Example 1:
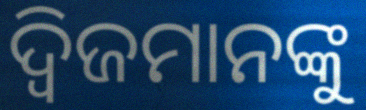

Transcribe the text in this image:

ଦ୍ଵିଜମାନଙ୍କୁ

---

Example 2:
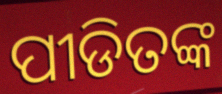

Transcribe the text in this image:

ପୀଡିତଙ୍କ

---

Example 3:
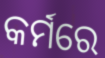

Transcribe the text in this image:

କର୍ମରେ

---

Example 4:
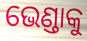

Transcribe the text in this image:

ଭେଣ୍ଡାକୁ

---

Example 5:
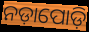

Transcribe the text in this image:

ନଡ଼ାପୋଡ଼ି